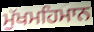
ਮੁੱਖਮਹਿਮਾਨ